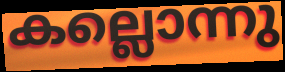
കല്ലൊന്നു